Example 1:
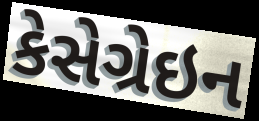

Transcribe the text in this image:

કેસેગ્રેઇન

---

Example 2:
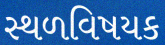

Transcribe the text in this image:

સ્થળવિષયક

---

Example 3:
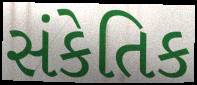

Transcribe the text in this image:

સંકેતિક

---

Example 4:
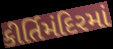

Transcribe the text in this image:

કીર્તિમંદિરમાં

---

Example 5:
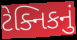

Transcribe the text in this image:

ટેક્નિકનું